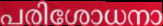
പരിശോധനാ